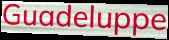
Guadeluppe